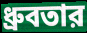
ধ্রুবতার